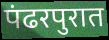
पंढरपुरात